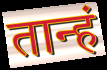
तान्हं